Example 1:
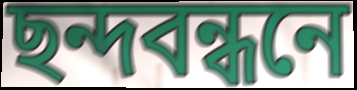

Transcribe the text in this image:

ছন্দবন্ধনে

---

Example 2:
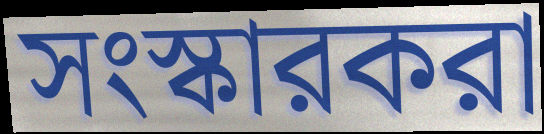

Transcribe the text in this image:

সংস্কারকরা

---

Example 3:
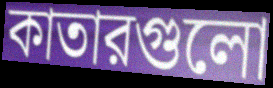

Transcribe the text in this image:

কাতারগুলো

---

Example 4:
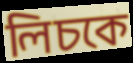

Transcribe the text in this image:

লিচকে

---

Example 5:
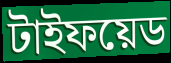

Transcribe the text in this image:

টাইফয়েড